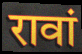
रावां